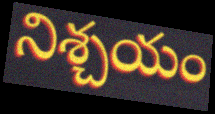
నిశ్చయం